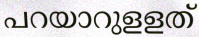
പറയാറുളളത്